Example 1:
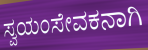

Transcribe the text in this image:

ಸ್ವಯಂಸೇವಕನಾಗಿ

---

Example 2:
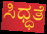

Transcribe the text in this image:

ಸಿಧ್ಧತೆ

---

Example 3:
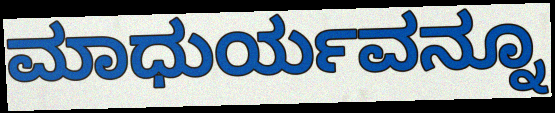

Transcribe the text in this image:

ಮಾಧುರ್ಯವನ್ನೂ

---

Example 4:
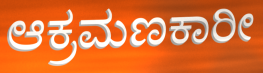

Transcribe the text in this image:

ಆಕ್ರಮಣಕಾರೀ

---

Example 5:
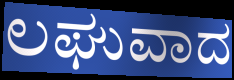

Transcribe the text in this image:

ಲಘುವಾದ